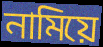
নামিয়ে